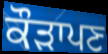
ਕੌੜਾਪਣ